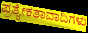
ಪ್ರತ್ಯೇಕತಾವಾದಿಗಳು